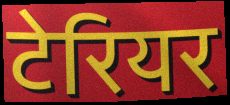
टेरियर